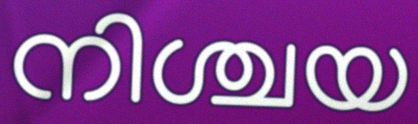
നിശ്ചയ